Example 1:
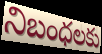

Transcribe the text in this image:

నిబంధలకు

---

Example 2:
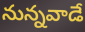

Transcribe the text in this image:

నున్నవాడే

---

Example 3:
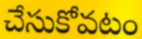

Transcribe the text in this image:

చేసుకోవటం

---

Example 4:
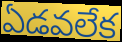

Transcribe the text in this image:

ఏడవలేక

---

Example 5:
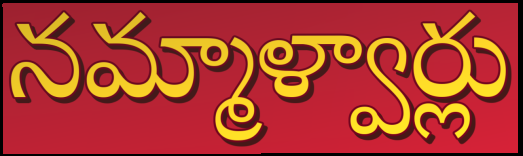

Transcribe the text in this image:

నమ్మాళ్వార్లు